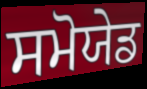
ਸਮੋਯੇਡ